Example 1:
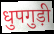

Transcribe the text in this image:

धुपगुड़ी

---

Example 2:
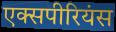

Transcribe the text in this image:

एक्सपीरियंस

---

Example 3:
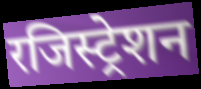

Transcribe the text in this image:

रजिस्‍ट्रेशन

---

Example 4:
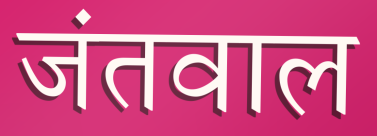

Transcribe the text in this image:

जंतवाल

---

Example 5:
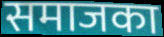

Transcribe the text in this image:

समाजका